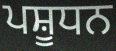
ਪਸ਼ੂਧਨ